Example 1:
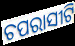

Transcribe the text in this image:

ଚପରାସୀଟି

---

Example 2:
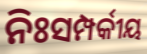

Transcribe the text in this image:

ନିଃସମ୍ପର୍କୀୟ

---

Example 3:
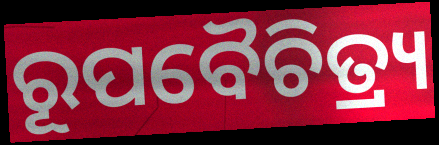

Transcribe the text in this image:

ରୂପବୈଚିତ୍ର୍ୟ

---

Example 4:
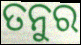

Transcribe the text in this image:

ତନୁର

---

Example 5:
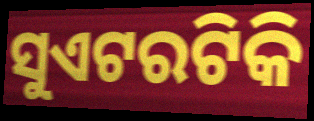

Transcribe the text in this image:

ସୁଏଟରଟିକି